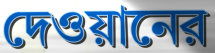
দেওয়ানের